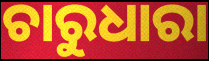
ଚାରୁଧାରା